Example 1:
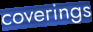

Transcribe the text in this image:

coverings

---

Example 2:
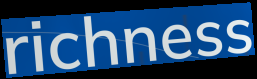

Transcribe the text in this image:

richness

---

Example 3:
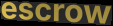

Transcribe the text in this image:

escrow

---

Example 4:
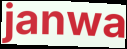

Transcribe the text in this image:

janwa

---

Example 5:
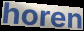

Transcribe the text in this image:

horen